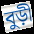
বুড়ী